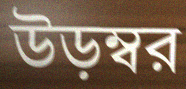
উড়ম্বর